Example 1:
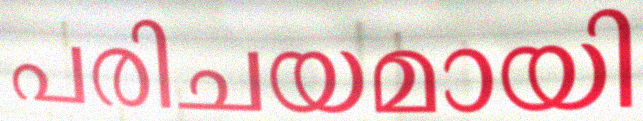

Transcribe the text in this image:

പരിചയമായി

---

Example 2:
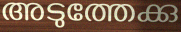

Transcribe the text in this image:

അടുത്തേക്കു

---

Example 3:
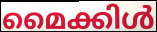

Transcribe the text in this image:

മൈക്കിൾ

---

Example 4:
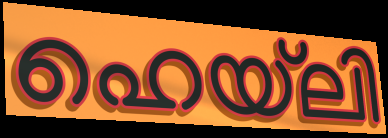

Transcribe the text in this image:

ഹെയ്‌ലി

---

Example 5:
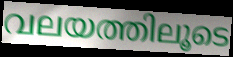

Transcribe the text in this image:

വലയത്തിലൂടെ